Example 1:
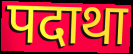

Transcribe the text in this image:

पदाथा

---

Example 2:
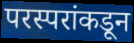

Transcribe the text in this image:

परस्परांकडून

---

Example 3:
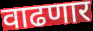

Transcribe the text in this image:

वाढणार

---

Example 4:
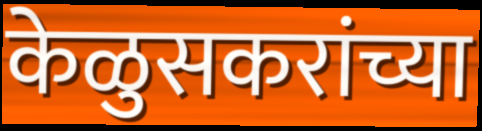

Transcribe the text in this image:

केळुसकरांच्या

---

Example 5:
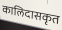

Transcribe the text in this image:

कालिदासकृत